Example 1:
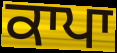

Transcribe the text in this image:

ਕਾਪਾ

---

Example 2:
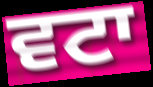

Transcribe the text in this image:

ਵਟਾ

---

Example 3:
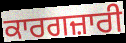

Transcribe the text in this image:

ਕਾਰਗਜ਼ਾਰੀ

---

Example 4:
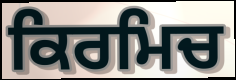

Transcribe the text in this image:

ਕਿਰਮਿਚ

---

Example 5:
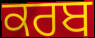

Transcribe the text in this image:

ਕਰਬ